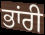
ਭਾਂਰੀ